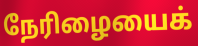
நேரிழையைக்